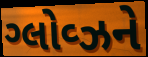
ગ્લોવ્ઝને